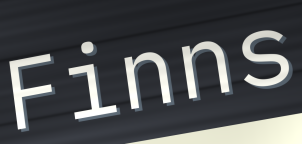
Finns